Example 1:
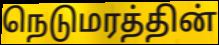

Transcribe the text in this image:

நெடுமரத்தின்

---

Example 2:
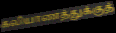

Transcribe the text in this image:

கலியாணத்துக்குத்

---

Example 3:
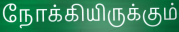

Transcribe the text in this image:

நோக்கியிருக்கும்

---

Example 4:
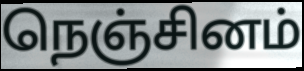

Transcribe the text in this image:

நெஞ்சினம்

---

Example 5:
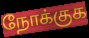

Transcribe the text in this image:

நோக்குக